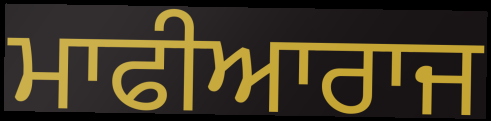
ਮਾਫੀਆਰਾਜ